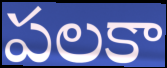
పలకా